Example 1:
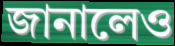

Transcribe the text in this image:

জানালেও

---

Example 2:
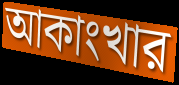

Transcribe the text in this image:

আকাংখার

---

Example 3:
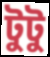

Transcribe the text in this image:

টুটু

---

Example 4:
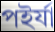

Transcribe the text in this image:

পইর্যা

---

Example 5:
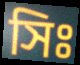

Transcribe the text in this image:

সিঃ